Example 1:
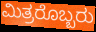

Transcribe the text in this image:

ಮಿತ್ರರೊಬ್ಬರು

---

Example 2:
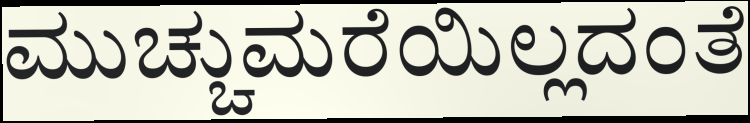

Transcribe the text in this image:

ಮುಚ್ಚುಮರೆಯಿಲ್ಲದಂತೆ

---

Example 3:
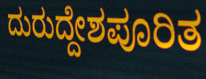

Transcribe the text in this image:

ದುರುದ್ದೇಶಪೂರಿತ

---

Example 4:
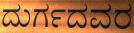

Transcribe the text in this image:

ದುರ್ಗದವರ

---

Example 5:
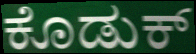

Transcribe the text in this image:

ಕೊಡುಕ್